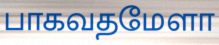
பாகவதமேளா